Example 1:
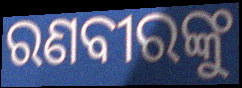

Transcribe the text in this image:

ରଣବୀରଙ୍କୁ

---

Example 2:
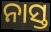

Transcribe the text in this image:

ନାସ୍ତ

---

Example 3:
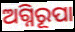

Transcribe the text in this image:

ଅଗ୍ନିରୂପା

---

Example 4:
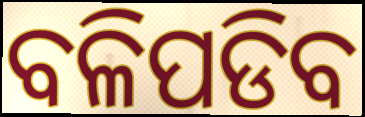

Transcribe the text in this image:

ବଳିପଡିବ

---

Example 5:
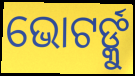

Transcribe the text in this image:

ଭୋଟର୍ଙ୍କୁ